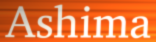
Ashima